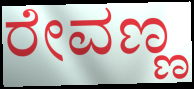
ರೇವಣ್ಣ